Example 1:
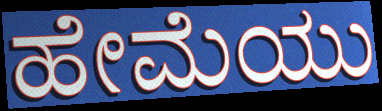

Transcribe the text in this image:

ಹೇಮೆಯು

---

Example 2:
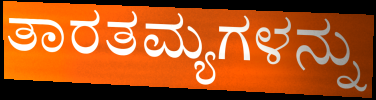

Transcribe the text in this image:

ತಾರತಮ್ಯಗಳನ್ನು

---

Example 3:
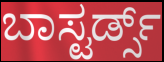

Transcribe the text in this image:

ಬಾಸ್ಟರ್ಡ್ಸ್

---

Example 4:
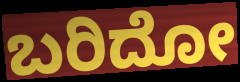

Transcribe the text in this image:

ಬರಿದೋ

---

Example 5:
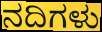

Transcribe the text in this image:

ನದಿಗಳು